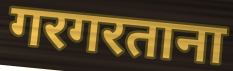
गरगरताना